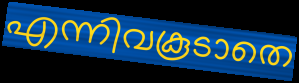
എന്നിവകൂടാതെ